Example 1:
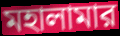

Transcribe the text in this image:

মহালামার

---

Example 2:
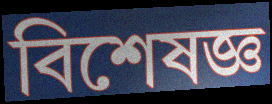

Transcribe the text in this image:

বিশেষজ্ঞ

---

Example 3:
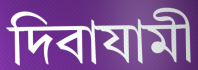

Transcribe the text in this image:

দিবাযামী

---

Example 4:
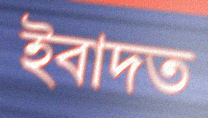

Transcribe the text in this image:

ইবাদত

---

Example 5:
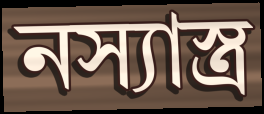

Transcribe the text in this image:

নস্যাস্ত্র